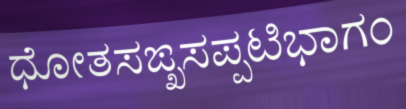
ಧೋತಸಙ್ಖಸಪ್ಪಟಿಭಾಗಂ